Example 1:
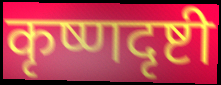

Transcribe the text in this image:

कृष्णदृष्टी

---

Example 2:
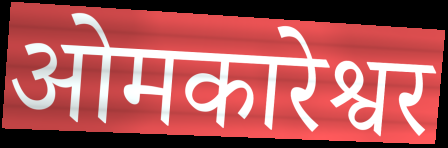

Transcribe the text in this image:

ओमकारेश्वर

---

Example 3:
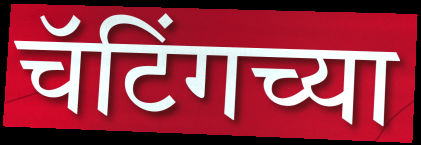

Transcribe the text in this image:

चॅटिंगच्या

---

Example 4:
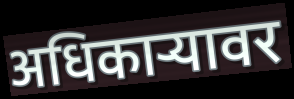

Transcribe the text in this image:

अधिकार्‍यावर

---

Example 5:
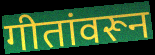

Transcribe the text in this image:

गीतांवरून